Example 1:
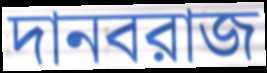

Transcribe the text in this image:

দানবরাজ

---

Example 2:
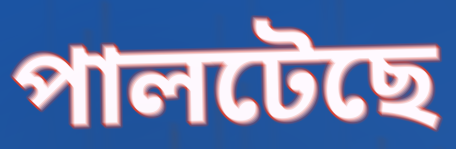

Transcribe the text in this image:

পালটেছে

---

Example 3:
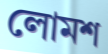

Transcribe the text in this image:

লোমশ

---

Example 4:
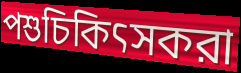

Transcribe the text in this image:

পশুচিকিৎসকরা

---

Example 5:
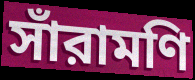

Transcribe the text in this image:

সাঁরামণি